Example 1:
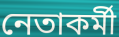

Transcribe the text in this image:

নেতাকর্মী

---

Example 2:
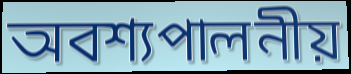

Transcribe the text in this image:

অবশ্যপালনীয়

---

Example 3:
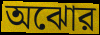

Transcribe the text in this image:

অঝোর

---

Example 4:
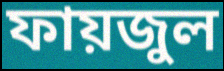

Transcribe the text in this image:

ফায়জুল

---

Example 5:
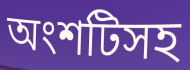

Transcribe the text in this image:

অংশটিসহ